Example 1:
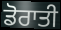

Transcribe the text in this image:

ਡੋਰਾਤੀ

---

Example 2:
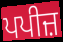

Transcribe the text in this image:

ਪਪੀਜ਼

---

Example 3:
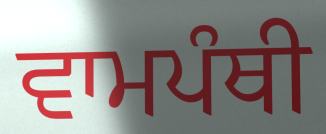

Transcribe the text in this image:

ਵਾਮਪੰਥੀ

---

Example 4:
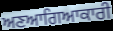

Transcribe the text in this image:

ਅਣਆਗਿਆਕਾਰੀ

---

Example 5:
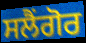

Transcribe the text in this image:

ਸਲੈਂਗੋਰ